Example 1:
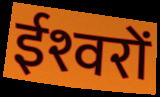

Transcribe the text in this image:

ईश्वरों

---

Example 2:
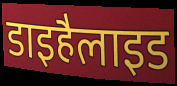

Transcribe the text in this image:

डाइहैलाइड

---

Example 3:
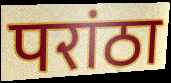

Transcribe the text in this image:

परांठा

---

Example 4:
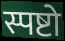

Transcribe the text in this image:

स्पष्टो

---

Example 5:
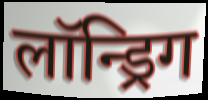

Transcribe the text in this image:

लॉन्ड्रिग